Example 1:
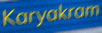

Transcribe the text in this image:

Karyakram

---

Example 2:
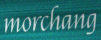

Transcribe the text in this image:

morchang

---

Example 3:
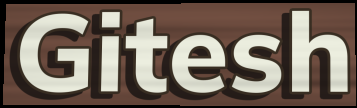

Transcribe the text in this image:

Gitesh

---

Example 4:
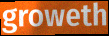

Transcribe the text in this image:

groweth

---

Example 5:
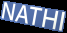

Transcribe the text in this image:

NATHI